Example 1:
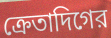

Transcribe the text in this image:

ক্রেতাদিগের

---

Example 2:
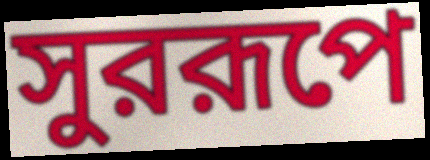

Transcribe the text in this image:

সুররূপে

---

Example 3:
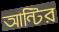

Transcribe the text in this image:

আন্টির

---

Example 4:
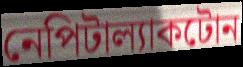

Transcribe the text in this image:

নেপিটাল্যাকটোন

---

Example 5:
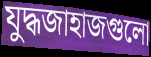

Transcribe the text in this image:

যুদ্ধজাহাজগুলো